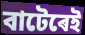
বাটেৰেই